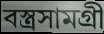
বস্ত্রসামগ্রী